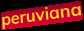
peruviana